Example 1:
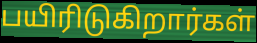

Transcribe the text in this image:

பயிரிடுகிறார்கள்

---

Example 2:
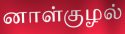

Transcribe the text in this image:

னாள்குழல்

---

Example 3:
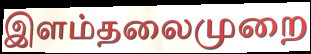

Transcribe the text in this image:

இளம்தலைமுறை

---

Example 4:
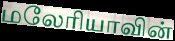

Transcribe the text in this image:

மலேரியாவின்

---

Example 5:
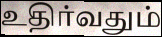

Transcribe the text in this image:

உதிர்வதும்